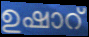
ഉഷാറ്